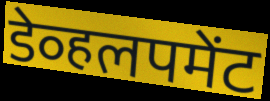
डेव्‍हलपमेंट